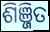
ଶିଞ୍ଜିତ